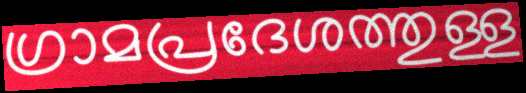
ഗ്രാമപ്രദേശത്തുള്ള